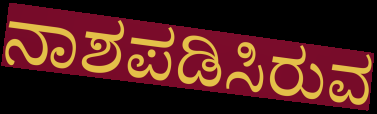
ನಾಶಪಡಿಸಿರುವ